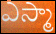
ఎస్మా